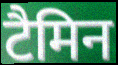
टैमिन